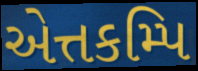
એત્તકમ્પિ